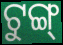
ଟୁଙ୍ଗ୍